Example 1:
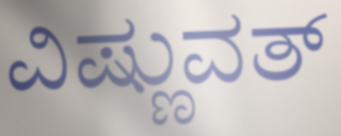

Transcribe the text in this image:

ವಿಷ್ಣುವತ್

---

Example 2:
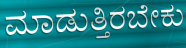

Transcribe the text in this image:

ಮಾಡುತ್ತಿರಬೇಕು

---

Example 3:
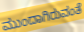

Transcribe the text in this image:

ಮುಂದಾಗಿರುವಂತೆ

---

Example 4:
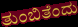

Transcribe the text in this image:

ತುಂಬಿತೆಂದು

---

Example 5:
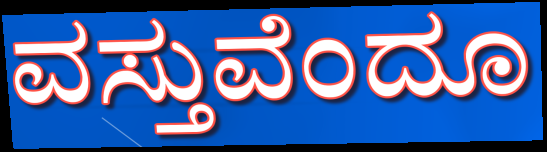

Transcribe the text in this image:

ವಸ್ತುವೆಂದೂ